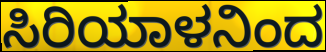
ಸಿರಿಯಾಳನಿಂದ